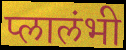
प्लालंभी